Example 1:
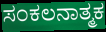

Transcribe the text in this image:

ಸಂಕಲನಾತ್ಮಕ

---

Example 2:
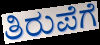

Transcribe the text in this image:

ತಿರುಪೆಗೆ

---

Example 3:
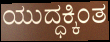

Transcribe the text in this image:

ಯುದ್ಧಕ್ಕಿಂತ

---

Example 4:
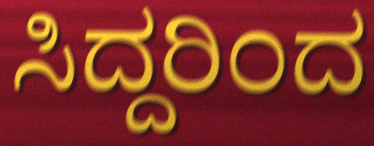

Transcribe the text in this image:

ಸಿದ್ದರಿಂದ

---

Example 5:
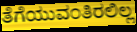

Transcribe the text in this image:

ತೆಗೆಯುವಂತಿರಲಿಲ್ಲ